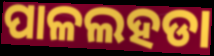
ପାଳଲହଡା